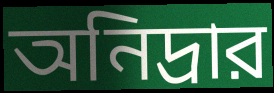
অনিদ্রার